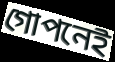
গোপনেই